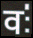
वः॑